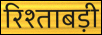
रिश्ताबड़ी